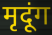
मृदूंग